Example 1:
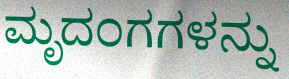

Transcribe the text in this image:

ಮೃದಂಗಗಳನ್ನು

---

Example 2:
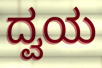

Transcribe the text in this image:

ದ್ವಯ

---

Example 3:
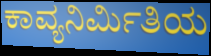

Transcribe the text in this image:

ಕಾವ್ಯನಿರ್ಮಿತಿಯ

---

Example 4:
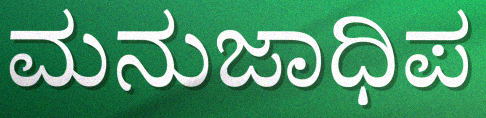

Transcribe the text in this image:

ಮನುಜಾಧಿಪ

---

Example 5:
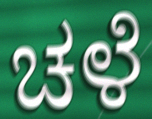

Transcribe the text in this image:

ಚಳೆ